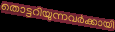
തൊട്ടറിയുന്നവർക്കായി